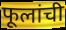
फूलांची